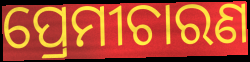
ପ୍ରେମୀଚାରଣ